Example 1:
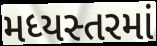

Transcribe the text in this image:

મધ્યસ્તરમાં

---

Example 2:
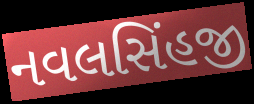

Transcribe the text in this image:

નવલસિંહજી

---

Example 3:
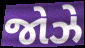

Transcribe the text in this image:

જોઝે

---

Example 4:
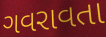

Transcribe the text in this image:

ગવરાવતા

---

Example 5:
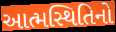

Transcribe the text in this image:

આત્મસ્થિતિનો